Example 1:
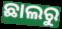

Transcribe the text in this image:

ଛାଲରୁ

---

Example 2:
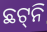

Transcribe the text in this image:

ଛଟ୍‌ନି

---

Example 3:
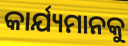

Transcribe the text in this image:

କାର୍ଯ୍ୟମାନକୁ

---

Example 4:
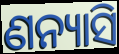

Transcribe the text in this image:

ଣନ୍ୟାସି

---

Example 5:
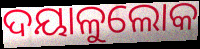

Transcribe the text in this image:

ଦୟାଳୁଲୋକ